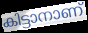
കിട്ടാനാണ്